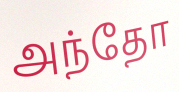
அந்தோ